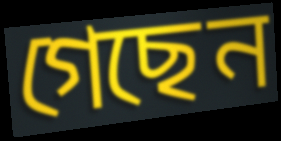
গেছেন